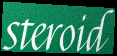
steroid